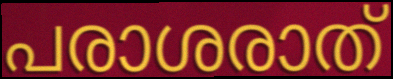
പരാശരാത്